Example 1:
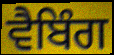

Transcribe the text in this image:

ਵੈਬਿੰਗ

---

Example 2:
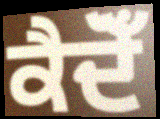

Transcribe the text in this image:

ਕੈਦੋਁ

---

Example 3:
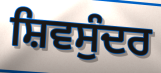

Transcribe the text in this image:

ਸ਼ਿਵਸੁੰਦਰ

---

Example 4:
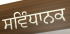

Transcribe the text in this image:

ਸਵਿੰਧਾਨਕ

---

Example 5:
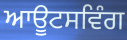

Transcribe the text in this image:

ਆਊਟਸਵਿੰਗ